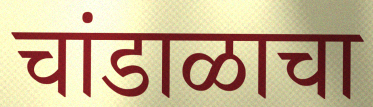
चांडाळाचा